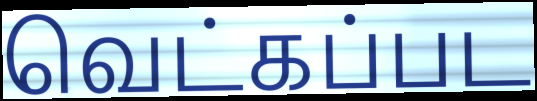
வெட்கப்பட